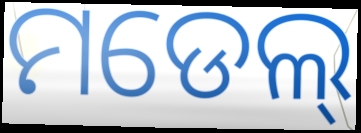
ମଡେଲ୍